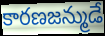
కారణజన్ముడే